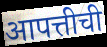
आपत्तीची